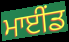
ਮਾਈਂਡ